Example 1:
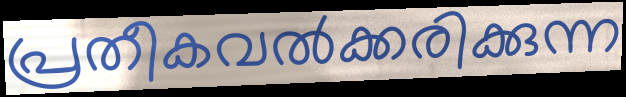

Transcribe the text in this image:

പ്രതീകവൽക്കരിക്കുന്ന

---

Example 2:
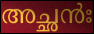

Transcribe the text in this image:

അച്ഛൻഃ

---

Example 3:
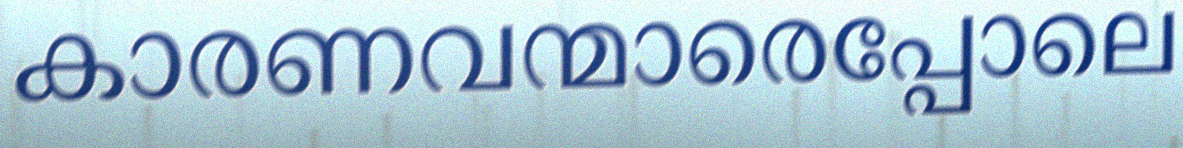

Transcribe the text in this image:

കാരണവന്മാരെപ്പോലെ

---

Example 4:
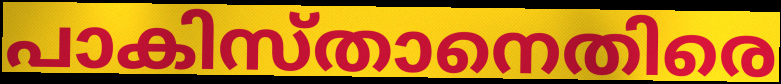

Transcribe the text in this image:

പാകിസ്താനെതിരെ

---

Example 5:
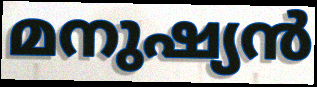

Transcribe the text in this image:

മനുഷ്യൻ